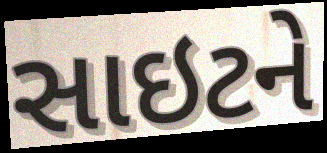
સાઇટને